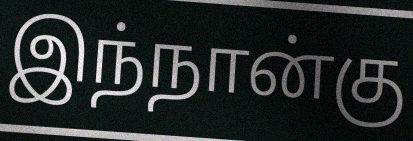
இந்நான்கு